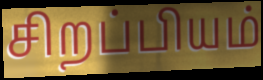
சிறப்பியம்